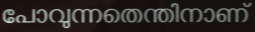
പോവുന്നതെന്തിനാണ്